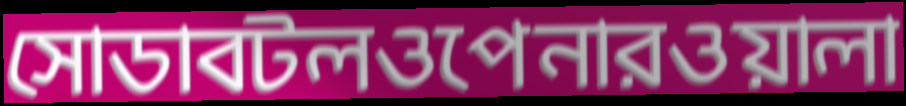
সোডাবটলওপেনারওয়ালা